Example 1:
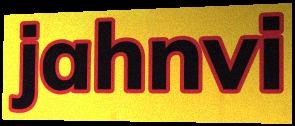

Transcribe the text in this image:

jahnvi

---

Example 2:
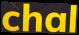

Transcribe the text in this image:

chal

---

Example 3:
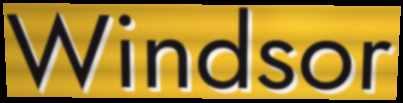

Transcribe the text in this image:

Windsor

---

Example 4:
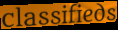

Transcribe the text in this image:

classifieds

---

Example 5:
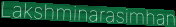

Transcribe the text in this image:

Lakshminarasimhan